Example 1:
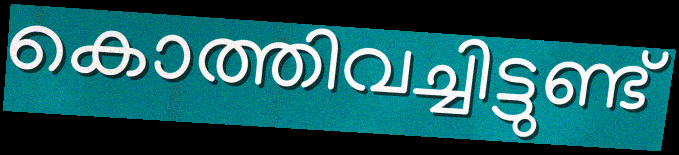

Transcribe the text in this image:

കൊത്തിവച്ചിട്ടുണ്ട്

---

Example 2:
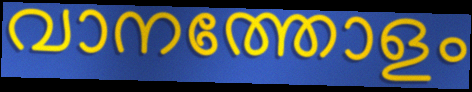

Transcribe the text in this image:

വാനത്തോളം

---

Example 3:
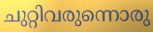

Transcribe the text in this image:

ചുറ്റിവരുന്നൊരു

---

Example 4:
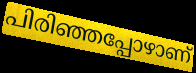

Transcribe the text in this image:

പിരിഞ്ഞപ്പോഴാണ്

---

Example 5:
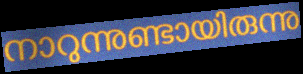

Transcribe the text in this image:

നാറുന്നുണ്ടായിരുന്നു